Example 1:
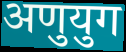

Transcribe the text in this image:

अणुयुग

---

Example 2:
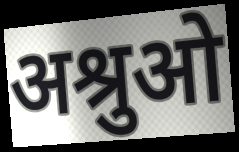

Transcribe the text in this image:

अश्रुओ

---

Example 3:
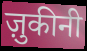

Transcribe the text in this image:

ज़ुकीनी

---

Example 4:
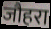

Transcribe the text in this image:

जौहरा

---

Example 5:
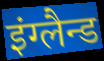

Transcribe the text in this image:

इंग्लैन्ड